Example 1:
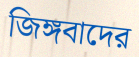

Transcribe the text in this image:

জিঙ্গবাদের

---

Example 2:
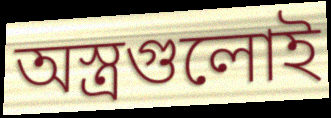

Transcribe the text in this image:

অস্ত্রগুলোই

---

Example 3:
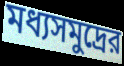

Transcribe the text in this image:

মধ্যসমুদ্রের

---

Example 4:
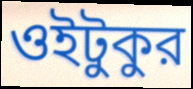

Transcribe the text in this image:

ওইটুকুর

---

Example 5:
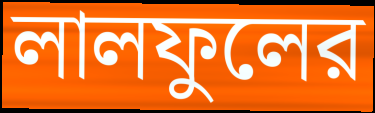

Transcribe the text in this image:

লালফুলের